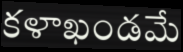
కళాఖండమే